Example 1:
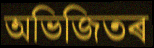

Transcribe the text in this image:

অভিজিতৰ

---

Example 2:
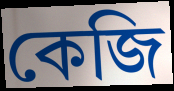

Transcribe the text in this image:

কেজি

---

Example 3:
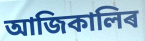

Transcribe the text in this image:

আজিকালিৰ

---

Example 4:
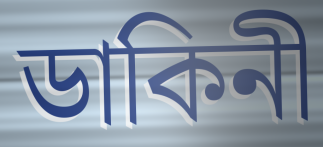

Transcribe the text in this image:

ডাকিনী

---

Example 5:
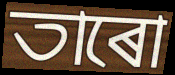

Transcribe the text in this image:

তাৰো